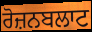
ਰੋਜ਼ਨਬਲਾਟ